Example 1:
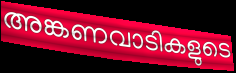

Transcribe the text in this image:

അങ്കണവാടികളുടെ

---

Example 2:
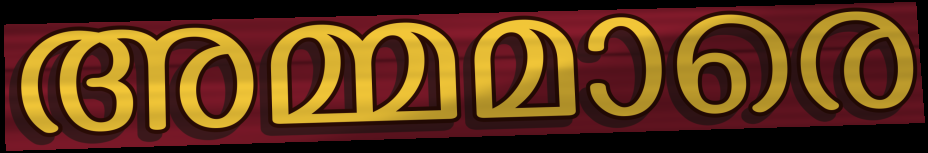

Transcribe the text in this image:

അമ്മമാരെ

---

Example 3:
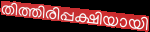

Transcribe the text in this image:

തിത്തിരിപ്പക്ഷിയായി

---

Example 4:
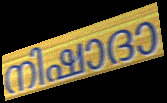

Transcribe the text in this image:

നിഷാദാ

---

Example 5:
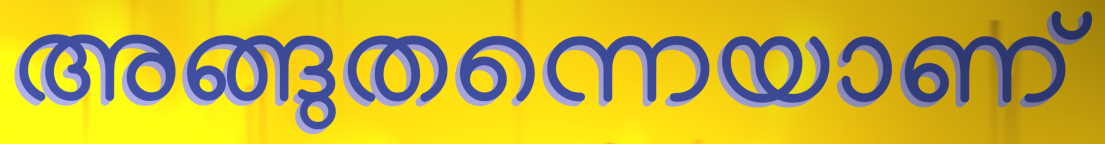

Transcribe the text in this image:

അങ്ങുതന്നെയാണ്